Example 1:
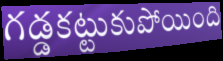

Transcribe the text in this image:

గడ్డకట్టుకుపోయింది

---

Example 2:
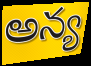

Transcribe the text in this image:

అన్య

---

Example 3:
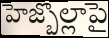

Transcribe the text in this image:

హెజ్బొల్లాపై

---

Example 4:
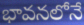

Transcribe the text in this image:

భావనలోనే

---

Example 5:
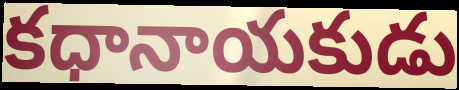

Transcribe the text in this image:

కధానాయకుడు